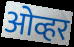
ओव्हर